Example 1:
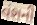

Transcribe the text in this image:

વંશની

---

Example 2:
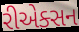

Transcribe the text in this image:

રીએક્સન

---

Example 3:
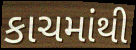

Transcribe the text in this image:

કાચમાંથી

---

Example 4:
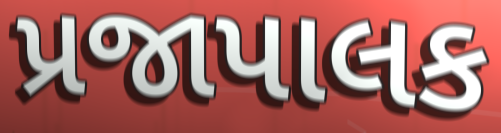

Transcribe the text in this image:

પ્રજાપાલક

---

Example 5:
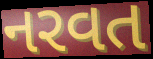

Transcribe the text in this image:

નરવત